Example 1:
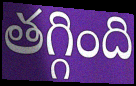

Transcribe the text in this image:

తగ్గింది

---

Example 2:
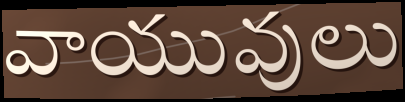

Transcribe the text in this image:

వాయువులు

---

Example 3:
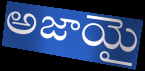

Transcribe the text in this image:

అజాయై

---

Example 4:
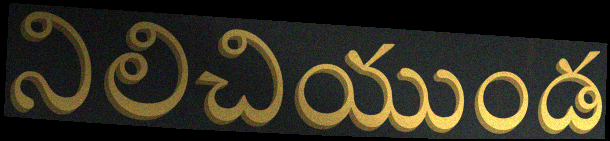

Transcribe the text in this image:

నిలిచియుండ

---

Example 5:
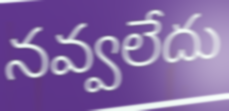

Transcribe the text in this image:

నవ్వలేదు